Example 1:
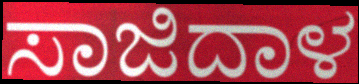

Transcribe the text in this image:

ಸಾಜಿದಾಳ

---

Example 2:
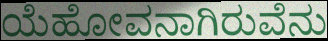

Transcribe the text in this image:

ಯೆಹೋವನಾಗಿರುವೆನು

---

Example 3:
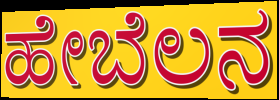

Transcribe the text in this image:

ಹೇಬೆಲನ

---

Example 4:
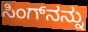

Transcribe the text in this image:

ಸಿಂಗ್‌ನನ್ನು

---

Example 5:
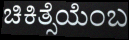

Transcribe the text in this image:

ಚಿಕಿತ್ಸೆಯೆಂಬ